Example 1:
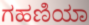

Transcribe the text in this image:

ಗಹಣಿಯಾ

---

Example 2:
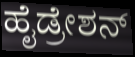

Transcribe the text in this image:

ಹೈಡ್ರೇಶನ್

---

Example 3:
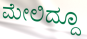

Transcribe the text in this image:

ಮೇಲಿದ್ದೂ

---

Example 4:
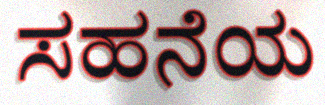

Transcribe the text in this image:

ಸಹನೆಯ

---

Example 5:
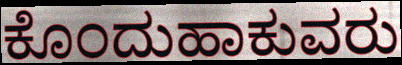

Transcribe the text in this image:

ಕೊಂದುಹಾಕುವರು